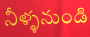
నీళ్ళనుండి